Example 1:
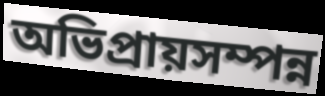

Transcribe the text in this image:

অভিপ্রায়সম্পন্ন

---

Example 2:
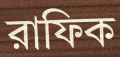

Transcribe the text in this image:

রাফিক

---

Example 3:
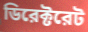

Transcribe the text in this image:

ডিরেক্টরেট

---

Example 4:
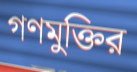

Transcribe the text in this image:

গণমুক্তির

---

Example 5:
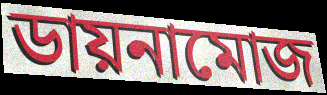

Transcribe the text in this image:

ডায়নামোজ